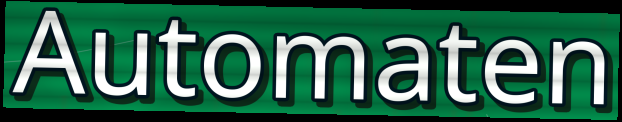
Automaten